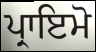
ਪ੍ਰਾਇਮੋ